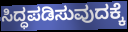
ಸಿದ್ಧಪಡಿಸುವುದಕ್ಕೆ